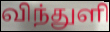
விந்துளி